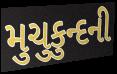
મુચુકુન્દની